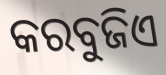
କରବୁଜିଏ